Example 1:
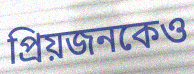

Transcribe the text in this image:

প্রিয়জনকেও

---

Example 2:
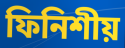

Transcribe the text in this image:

ফিনিশীয়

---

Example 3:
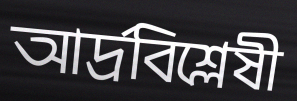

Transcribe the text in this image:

আর্দ্রবিশ্লেষী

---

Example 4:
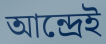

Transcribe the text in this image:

আন্দ্রেই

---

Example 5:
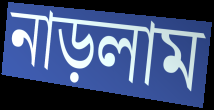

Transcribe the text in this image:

নাড়লাম